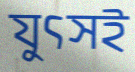
যুৎসই